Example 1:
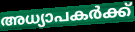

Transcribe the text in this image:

അധ്യാപകർക്ക്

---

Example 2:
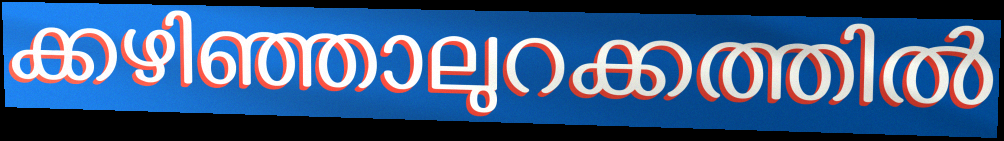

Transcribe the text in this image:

ക്കഴിഞ്ഞാലുറക്കത്തിൽ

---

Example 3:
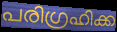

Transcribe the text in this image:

പരിഗ്രഹിക്ക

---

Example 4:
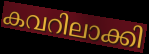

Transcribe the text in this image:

കവറിലാക്കി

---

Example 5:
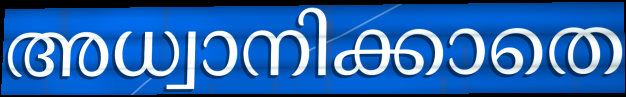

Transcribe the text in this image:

അധ്വാനിക്കാതെ